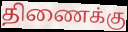
திணைக்கு